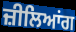
ਜ਼ੀਲਿਆਂਗ